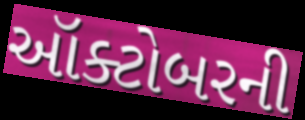
ઑક્ટોબરની